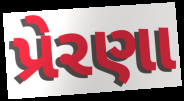
પ્રેરણા